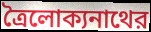
ত্রৈলোক্যনাথের